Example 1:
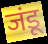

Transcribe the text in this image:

जंडू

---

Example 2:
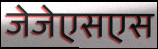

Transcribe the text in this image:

जेजेएसएस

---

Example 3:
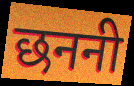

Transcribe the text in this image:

छननी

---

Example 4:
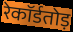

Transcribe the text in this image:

रेकॉर्डतोड़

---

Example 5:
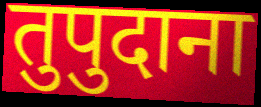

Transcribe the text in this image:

तुपुदाना